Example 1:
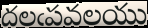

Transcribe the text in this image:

దలఁపవలయు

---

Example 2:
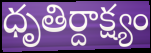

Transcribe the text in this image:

ధృతిర్దాక్ష్యం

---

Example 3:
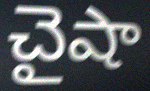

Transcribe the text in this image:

చైషా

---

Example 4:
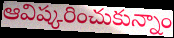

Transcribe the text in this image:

ఆవిష్కరించుకున్నాం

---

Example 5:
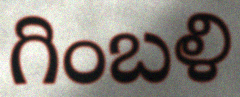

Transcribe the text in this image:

గింబళి